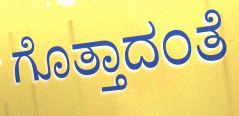
ಗೊತ್ತಾದಂತೆ